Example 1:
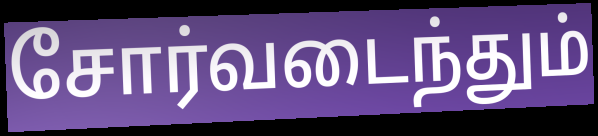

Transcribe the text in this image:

சோர்வடைந்தும்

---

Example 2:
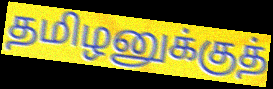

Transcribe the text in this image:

தமிழனுக்குத்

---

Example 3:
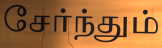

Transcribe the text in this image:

சேர்ந்தும்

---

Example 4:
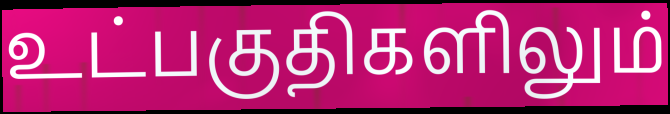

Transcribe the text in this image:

உட்பகுதிகளிலும்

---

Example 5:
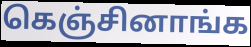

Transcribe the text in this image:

கெஞ்சினாங்க